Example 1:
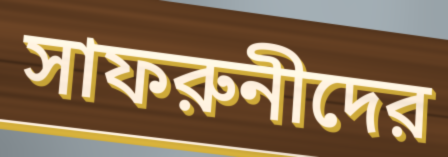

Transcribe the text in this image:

সাফরুনীদের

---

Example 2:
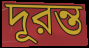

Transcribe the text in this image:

দূরন্ত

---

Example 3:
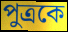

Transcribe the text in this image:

পুত্রকে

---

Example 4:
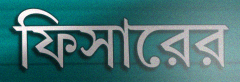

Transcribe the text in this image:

ফিসারের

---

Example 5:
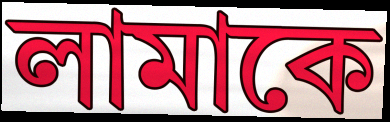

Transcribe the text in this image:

লামাকে